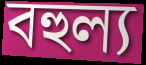
বহুল্য